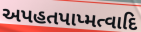
અપહતપાપ્મત્વાદિ